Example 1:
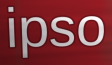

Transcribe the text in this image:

ipso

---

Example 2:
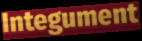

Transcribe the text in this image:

Integument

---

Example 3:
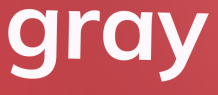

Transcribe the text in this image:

gray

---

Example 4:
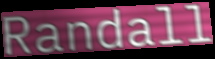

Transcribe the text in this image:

Randall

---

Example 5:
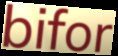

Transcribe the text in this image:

bifor